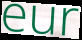
eur